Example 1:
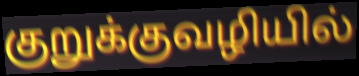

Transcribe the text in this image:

குறுக்குவழியில்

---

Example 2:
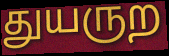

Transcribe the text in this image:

துயருற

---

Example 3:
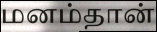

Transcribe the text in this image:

மனம்தான்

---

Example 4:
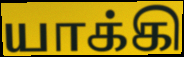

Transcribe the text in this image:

யாக்கி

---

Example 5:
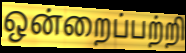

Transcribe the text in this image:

ஒன்றைப்பற்றி